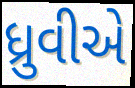
ધ્રુવીએ